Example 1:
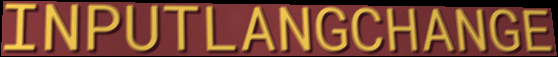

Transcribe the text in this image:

INPUTLANGCHANGE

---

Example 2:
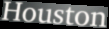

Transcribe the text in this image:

Houston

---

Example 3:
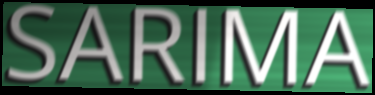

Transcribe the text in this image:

SARIMA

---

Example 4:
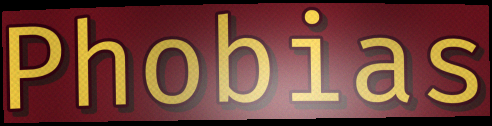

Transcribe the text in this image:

Phobias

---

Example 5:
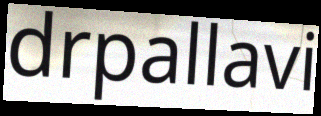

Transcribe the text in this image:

drpallavi